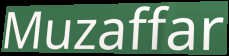
Muzaffar